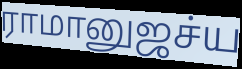
ராமானுஜச்ய